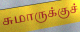
சுமாருக்குச்